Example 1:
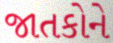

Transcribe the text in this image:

જાતકોને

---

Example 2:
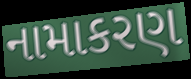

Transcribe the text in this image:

નામાકરણ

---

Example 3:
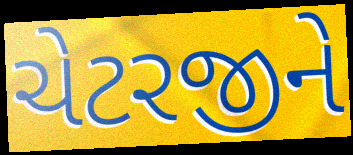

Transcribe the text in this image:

ચેટરજીને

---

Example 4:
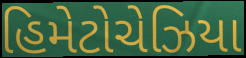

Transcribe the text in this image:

હિમેટોચેઝિયા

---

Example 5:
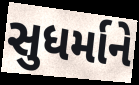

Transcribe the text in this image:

સુધર્માને